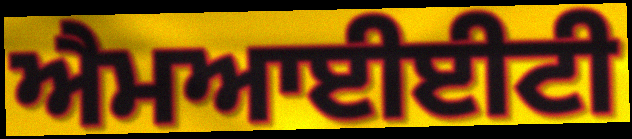
ਐਮਆਈਈਟੀ